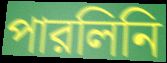
পারলিনি